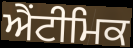
ਐਂਟੀਮਿਕ